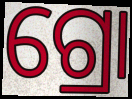
ଗ୍ରୋ